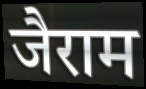
जैराम